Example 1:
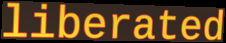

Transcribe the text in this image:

liberated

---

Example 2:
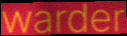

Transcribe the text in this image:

warder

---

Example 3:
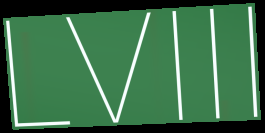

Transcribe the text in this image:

LVIII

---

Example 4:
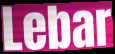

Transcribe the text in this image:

Lebar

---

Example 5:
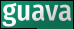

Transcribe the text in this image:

guava